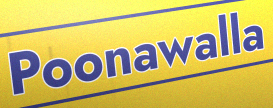
Poonawalla